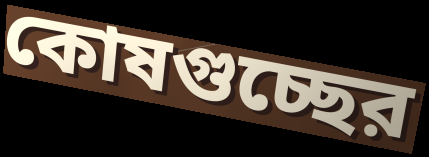
কোষগুচ্ছের